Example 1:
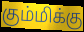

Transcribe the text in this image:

கும்மிக்கு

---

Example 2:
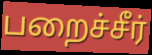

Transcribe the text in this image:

பறைச்சீர்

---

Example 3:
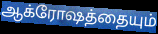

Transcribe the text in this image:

ஆக்ரோஷத்தையும்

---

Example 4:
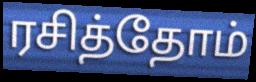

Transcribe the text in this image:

ரசித்தோம்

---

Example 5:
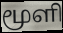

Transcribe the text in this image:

மூளி